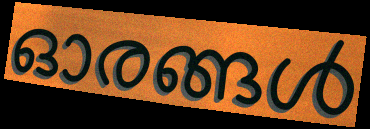
ഓരങ്ങൾ